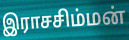
இராசசிம்மன்